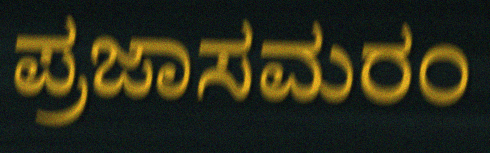
ಪ್ರಜಾಸಮರಂ